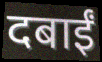
दबाईं